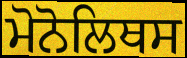
ਮੋਨੋਲਿਥਸ